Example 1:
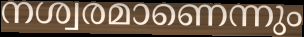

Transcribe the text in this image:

നശ്വരമാണെന്നും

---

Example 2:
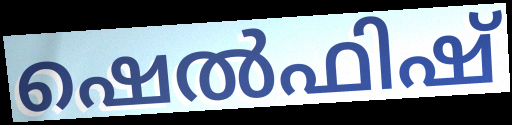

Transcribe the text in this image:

ഷെൽഫിഷ്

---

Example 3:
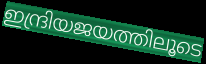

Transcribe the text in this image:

ഇന്ദ്രിയജയത്തിലൂടെ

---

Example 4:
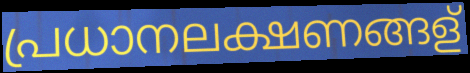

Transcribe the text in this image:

പ്രധാനലക്ഷണങ്ങള്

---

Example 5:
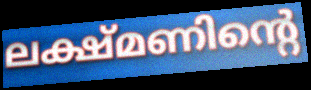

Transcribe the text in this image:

ലക്ഷ്മണിന്റെ